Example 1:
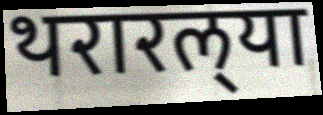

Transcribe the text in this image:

थरारल्या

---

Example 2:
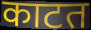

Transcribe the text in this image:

काटत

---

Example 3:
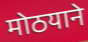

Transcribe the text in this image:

मोठयाने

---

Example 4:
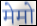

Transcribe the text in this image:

मेमो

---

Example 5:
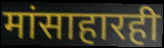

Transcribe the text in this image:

मांसाहारही